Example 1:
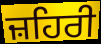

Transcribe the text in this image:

ਜ਼ਹਿਰੀ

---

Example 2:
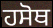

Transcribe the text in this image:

ਹਸੋਥ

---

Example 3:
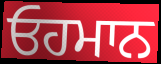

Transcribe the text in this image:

ਓਹਮਾਨ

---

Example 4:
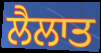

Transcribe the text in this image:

ਲੈਲਾਤ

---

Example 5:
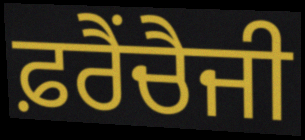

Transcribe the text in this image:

ਫ਼ਰੈਂਚੈਜੀ